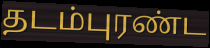
தடம்புரண்ட